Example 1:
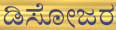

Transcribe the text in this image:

ಡಿಸೋಜರ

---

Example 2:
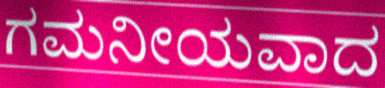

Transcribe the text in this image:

ಗಮನೀಯವಾದ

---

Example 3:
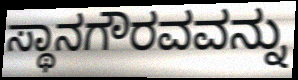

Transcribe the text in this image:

ಸ್ಥಾನಗೌರವವನ್ನು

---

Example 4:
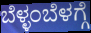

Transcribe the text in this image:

ಬೆಳ್ಳಂಬೆಳಗ್ಗೆ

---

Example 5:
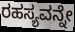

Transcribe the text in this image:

ರಹಸ್ಯವನ್ನೇ